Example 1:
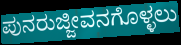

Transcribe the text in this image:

ಪುನರುಜ್ಜೀವನಗೊಳ್ಳಲು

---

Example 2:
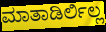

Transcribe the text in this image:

ಮಾತಾಡಿರ್ಲಿಲ್ಲ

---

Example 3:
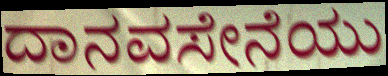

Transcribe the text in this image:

ದಾನವಸೇನೆಯು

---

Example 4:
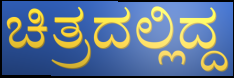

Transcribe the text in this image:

ಚಿತ್ರದಲ್ಲಿದ್ದ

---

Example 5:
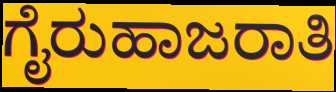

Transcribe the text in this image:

ಗೈರುಹಾಜರಾತಿ